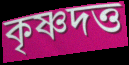
কৃষ্ণদত্ত